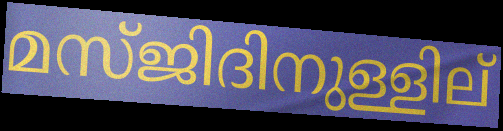
മസ്ജിദിനുള്ളില്